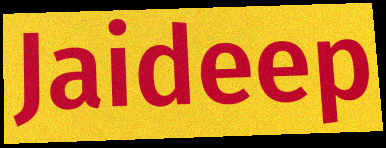
Jaideep